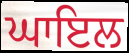
ਘਾਇਲ